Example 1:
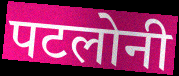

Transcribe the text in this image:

पटलोनी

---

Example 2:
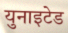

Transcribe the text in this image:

युनाइटेड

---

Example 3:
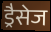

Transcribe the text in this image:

ड्रैसेज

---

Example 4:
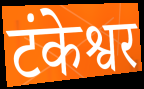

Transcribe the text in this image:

टंकेश्वर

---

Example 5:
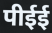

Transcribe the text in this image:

पीईई